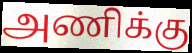
அணிக்கு